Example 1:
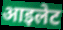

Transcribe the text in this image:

आइलेट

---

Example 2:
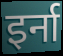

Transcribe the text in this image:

इर्ना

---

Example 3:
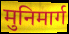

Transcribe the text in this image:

मुनिमार्ग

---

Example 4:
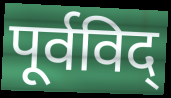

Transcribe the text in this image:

पूर्वविद्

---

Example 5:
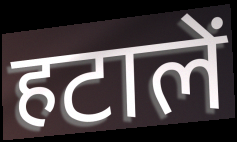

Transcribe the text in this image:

हटालें